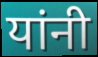
यांनी